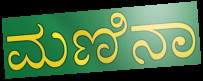
ಮಣಿನಾ